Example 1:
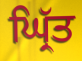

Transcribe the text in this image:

ਘ੍ਰਿੱਤ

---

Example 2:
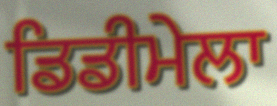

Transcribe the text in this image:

ਡਿਡੀਮੇਲਾ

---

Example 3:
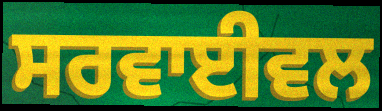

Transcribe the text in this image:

ਸਰਵਾਈਵਲ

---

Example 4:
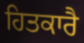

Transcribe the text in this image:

ਹਿਤਕਾਰੈ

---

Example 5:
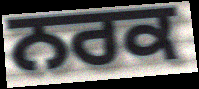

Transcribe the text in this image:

ਨਰਕ